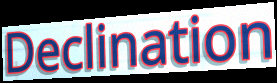
Declination